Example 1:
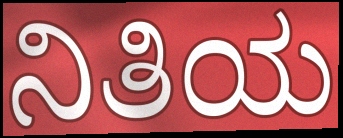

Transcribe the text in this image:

ನಿತಿಯ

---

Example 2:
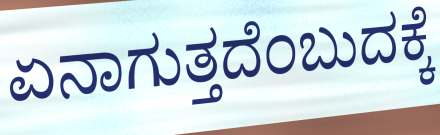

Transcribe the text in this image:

ಏನಾಗುತ್ತದೆಂಬುದಕ್ಕೆ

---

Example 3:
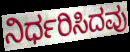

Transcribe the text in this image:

ನಿರ್ಧರಿಸಿದವು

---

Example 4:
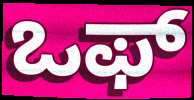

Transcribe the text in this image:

ಒಫ್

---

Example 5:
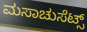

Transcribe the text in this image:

ಮಸಾಚುಸೆಟ್ಸ್